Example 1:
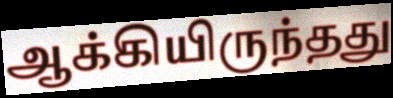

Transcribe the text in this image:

ஆக்கியிருந்தது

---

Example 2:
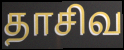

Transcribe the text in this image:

தாசிவ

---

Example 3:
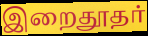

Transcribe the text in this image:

இறைதூதர்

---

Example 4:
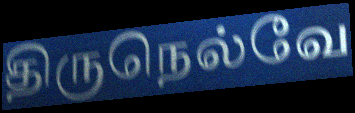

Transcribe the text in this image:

திருநெல்வே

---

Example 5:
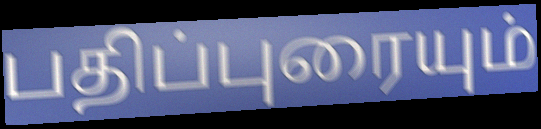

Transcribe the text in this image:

பதிப்புரையும்